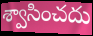
శ్వాసించదు